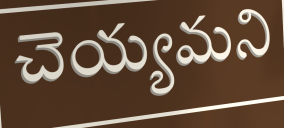
చెయ్యమని